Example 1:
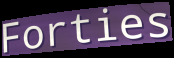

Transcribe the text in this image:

Forties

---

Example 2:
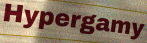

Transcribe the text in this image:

Hypergamy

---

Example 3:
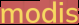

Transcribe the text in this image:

modis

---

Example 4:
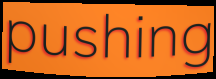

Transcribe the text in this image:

pushing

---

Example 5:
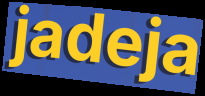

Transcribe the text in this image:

jadeja